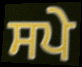
ਸਪੇ